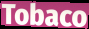
Tobaco